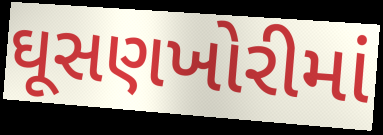
ઘૂસણખોરીમાં